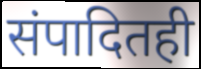
संपादितही